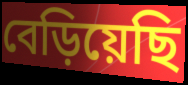
বেড়িয়েছি